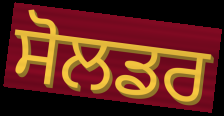
ਸੋਲਡਰ